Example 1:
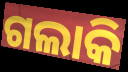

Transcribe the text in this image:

ଗଲାକି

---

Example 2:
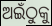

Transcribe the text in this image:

ଅଇଁଠୁକୁ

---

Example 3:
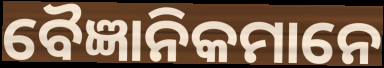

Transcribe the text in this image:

ବୈଜ୍ଞାନିକମାନେ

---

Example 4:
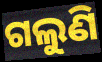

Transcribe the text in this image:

ଗଲୁଣି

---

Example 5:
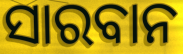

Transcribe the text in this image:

ସାରବାନ